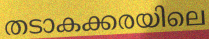
തടാകക്കരയിലെ